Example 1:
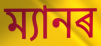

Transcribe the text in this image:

ম্যানৰ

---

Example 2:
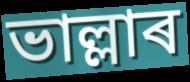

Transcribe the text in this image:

ভাল্লাৰ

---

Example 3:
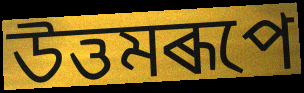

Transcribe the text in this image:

উত্তমৰূপে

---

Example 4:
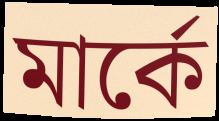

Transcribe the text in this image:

মাৰ্কে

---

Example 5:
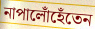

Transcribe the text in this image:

নাপালোঁহেঁতেন